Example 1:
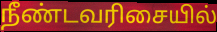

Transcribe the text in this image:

நீண்டவரிசையில்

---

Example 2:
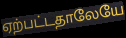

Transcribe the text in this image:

ஏற்பட்டதாலேயே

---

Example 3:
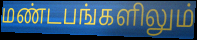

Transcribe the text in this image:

மண்டபங்களிலும்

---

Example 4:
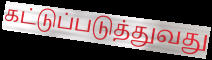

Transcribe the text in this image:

கட்டுப்படுத்துவது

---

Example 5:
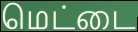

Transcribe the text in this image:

மெட்டை